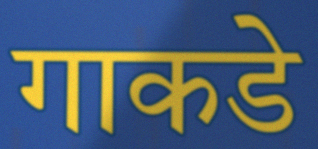
गाकडे